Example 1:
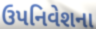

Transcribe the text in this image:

ઉપનિવેશના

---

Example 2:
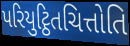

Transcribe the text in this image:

પરિયુટ્ઠિતચિત્તોતિ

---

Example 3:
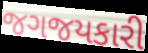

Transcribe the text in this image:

જગજયકારી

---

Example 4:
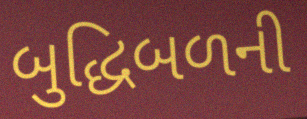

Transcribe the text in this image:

બુદ્ધિબળની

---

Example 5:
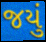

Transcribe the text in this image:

જયું